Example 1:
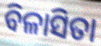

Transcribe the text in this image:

ବିଳାସିତା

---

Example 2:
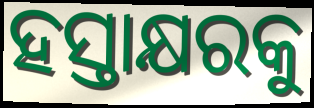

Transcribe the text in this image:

ହସ୍ତାକ୍ଷରକୁ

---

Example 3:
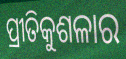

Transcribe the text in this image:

ପ୍ରୀତିକୁଶଳାର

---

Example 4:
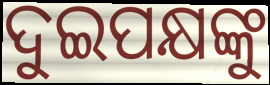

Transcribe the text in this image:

ଦୁଇପକ୍ଷଙ୍କୁ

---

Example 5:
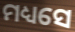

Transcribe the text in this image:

ମଧ୍ୟସେ